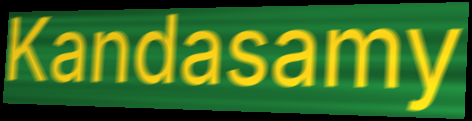
Kandasamy